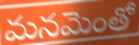
మనమెంతో